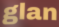
glan